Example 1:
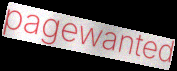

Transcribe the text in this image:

pagewanted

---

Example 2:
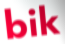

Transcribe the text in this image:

bik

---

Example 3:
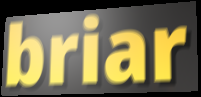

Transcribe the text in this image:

briar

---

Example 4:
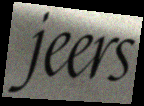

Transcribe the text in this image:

jeers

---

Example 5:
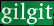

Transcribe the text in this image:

gilgit